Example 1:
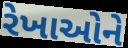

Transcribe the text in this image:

રેખાઓને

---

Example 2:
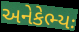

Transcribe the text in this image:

અનેકેભ્યઃ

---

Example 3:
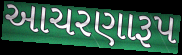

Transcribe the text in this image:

આચરણારૂપ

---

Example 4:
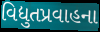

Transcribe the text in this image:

વિદ્યુતપ્રવાહના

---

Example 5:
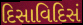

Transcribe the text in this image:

દિસાવિદિસં